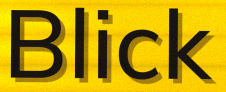
Blick